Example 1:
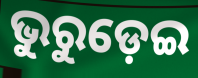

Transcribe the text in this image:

ଭୁରୁଡ଼େଇ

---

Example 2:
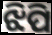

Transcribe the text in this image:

ଝିପି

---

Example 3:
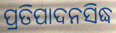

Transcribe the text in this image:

ପ୍ରତିପାଦନସିଦ୍ଧ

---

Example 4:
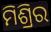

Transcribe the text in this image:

ମିଶ୍ରିର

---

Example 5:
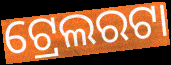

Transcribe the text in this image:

ଟ୍ରେଲରଟା